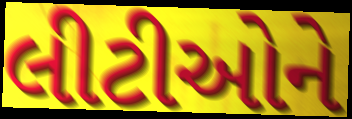
લીટીઓને